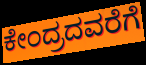
ಕೇಂದ್ರದವರೆಗೆ